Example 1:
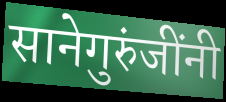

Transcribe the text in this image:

सानेगुरुंजींनी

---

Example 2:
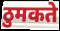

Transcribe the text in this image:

ठुमकते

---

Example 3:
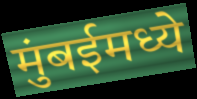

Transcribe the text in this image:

मुंबईमध्ये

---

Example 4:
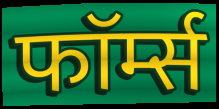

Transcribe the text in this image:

फॉर्म्स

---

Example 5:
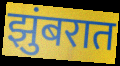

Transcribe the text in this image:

झुंबरात